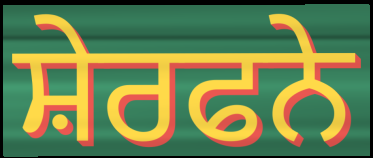
ਸ਼ੇਰਫਨੇ